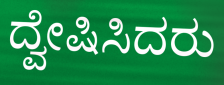
ದ್ವೇಷಿಸಿದರು